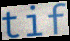
tif